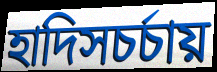
হাদিসচর্চায়